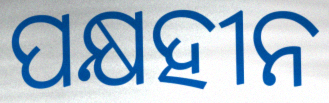
ପକ୍ଷହୀନ